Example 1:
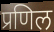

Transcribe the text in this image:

प्रणिल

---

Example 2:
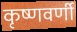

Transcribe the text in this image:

कृष्णवर्णी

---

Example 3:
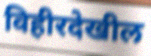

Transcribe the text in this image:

विहीरदेखील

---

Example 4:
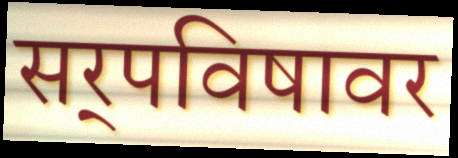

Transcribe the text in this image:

सर्पविषावर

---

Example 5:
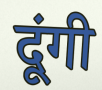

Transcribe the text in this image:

दूंगी